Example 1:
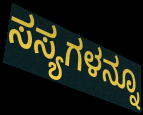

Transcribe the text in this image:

ಸಸ್ಯಗಳನ್ನೂ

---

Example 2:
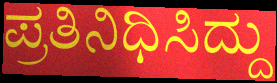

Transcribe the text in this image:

ಪ್ರತಿನಿಧಿಸಿದ್ದು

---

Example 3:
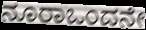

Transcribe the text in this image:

ನೂರಾಒಂದನೇ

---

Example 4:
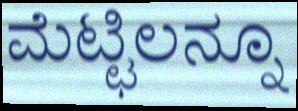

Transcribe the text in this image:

ಮೆಟ್ಟಿಲನ್ನೂ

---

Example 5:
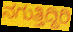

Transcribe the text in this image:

ನಗುತ್ತಿದ್ದಿರಿ